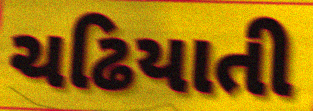
ચઢિયાતી